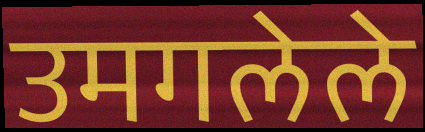
उमगलेले